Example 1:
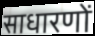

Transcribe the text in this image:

साधारणों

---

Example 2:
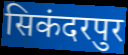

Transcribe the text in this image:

सिकंदरपुर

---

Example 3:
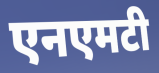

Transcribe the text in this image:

एनएमटी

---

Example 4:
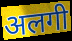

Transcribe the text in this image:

अलगी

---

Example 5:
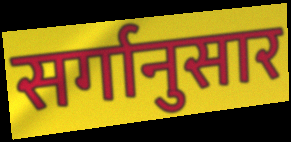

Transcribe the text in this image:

सर्गानुसार